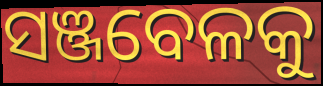
ସଞ୍ଜବେଳକୁ